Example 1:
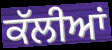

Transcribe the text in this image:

ਕੱਲੀਆਂ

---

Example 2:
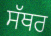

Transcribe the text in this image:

ਸੱਥਰ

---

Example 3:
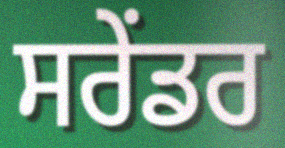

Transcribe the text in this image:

ਸਰੇਂਡਰ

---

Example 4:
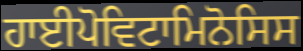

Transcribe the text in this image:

ਹਾਈਪੋਵਿਟਾਮਿਨੋਸਿਸ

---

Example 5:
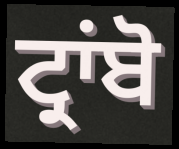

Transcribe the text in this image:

ਟ੍ਰਾਂਬੋ